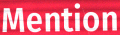
Mention